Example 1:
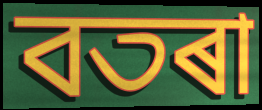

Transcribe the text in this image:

বতৰা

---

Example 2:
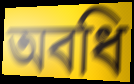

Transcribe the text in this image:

অবধি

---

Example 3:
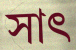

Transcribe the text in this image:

সাৎ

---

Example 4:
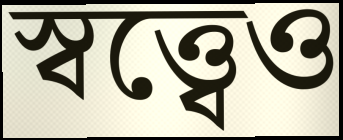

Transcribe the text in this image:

স্বত্ত্বেও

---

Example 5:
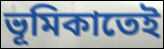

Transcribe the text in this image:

ভূমিকাতেই